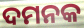
ଦମନକ